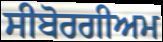
ਸੀਬੋਰਗੀਅਮ